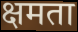
क्षमता